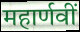
महार्णवीं